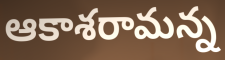
ఆకాశరామన్న